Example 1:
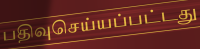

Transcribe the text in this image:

பதிவுசெய்யப்பட்டது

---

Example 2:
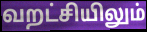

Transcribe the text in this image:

வறட்சியிலும்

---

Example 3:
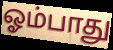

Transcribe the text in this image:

ஓம்பாது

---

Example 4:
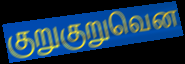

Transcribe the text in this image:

குறுகுறுவென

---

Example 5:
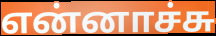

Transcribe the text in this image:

என்னாச்சு